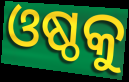
ଓଷ୍ଠକୁ